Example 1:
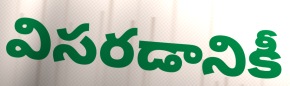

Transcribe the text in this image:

విసరడానికీ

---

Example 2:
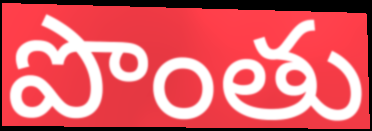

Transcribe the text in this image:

పొంతు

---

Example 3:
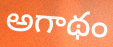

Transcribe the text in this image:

అగాథం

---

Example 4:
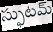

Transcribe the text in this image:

స్ఫుటమ్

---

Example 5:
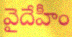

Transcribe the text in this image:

వైదేహీం